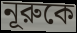
নূরুকে